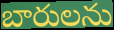
బారులను